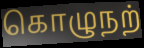
கொழுநற்